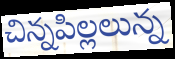
చిన్నపిల్లలున్న